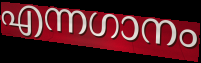
എന്നഗാനം